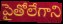
పైతోలేగాని